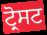
ਟ੍ਰੋਸਟ